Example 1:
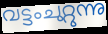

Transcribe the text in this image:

വട്ടംചുറ്റുന്നു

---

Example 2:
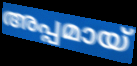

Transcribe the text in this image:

അപ്പമായ്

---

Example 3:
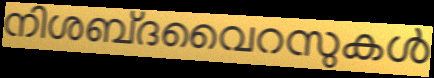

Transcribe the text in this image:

നിശബ്‌ദവൈറസുകൾ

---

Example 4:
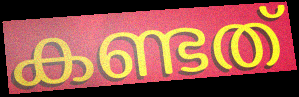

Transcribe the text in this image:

കണ്ടത്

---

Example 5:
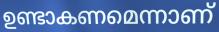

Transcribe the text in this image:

ഉണ്ടാകണമെന്നാണ്